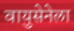
वायुसेनेला